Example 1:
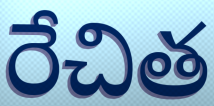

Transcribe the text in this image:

రేచిత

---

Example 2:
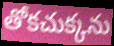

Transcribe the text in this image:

తోకచుక్కను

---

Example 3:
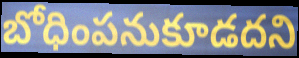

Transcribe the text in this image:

బోధింపనుకూడదని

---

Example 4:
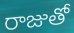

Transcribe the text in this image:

రాజుతో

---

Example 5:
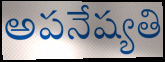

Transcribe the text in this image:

అపనేష్యతి